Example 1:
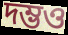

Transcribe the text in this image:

দম্ভও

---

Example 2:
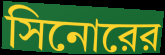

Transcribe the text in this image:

সিনোরের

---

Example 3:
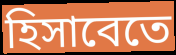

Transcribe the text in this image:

হিসাবেতে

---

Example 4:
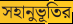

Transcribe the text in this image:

সহানুভূতির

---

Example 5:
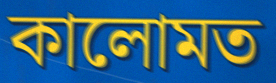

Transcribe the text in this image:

কালোমত